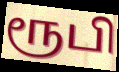
ரூபி